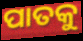
ପାତକୁ